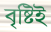
বৃষ্টিই